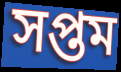
সপ্তম